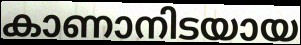
കാണാനിടയായ